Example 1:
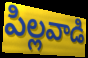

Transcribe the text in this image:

పిల్లవాడి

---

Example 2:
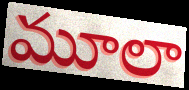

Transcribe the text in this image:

మూలా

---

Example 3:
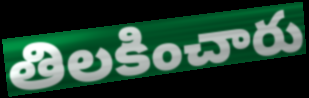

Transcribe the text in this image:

తిలకించారు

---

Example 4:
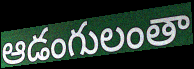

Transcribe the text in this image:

ఆడంగులంతా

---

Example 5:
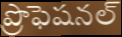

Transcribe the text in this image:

ప్రొఫెషనల్